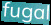
fugal